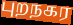
புறநகர